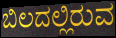
ಬಿಲದಲ್ಲಿರುವ